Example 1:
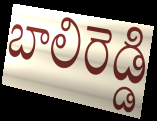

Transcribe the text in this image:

బాలిరెడ్డి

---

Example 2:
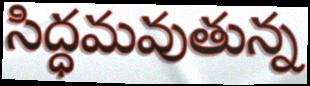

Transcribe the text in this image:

సిద్ధమవుతున్న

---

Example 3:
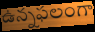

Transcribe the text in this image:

ఉన్నఫలంగా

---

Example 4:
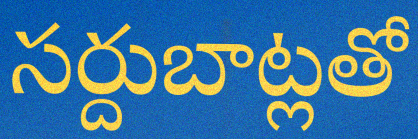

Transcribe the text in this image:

సర్దుబాట్లతో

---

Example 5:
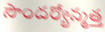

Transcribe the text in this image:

సౌందర్యోన్మత్త